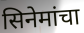
सिनेमांचा